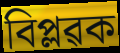
বিপ্লৱক